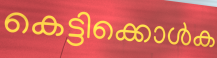
കെട്ടിക്കൊൾക